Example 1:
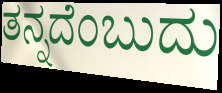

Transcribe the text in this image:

ತನ್ನದೆಂಬುದು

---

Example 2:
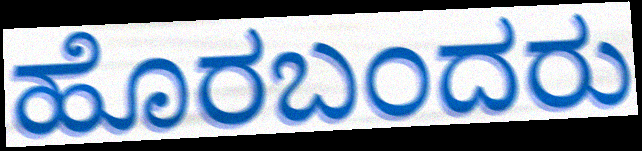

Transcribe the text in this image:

ಹೊರಬಂದರು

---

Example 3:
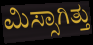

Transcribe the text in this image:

ಮಿಸ್ಸಾಗಿತ್ತು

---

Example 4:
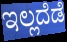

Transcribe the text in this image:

ಇಲ್ಲದೆಡೆ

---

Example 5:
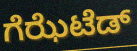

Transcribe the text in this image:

ಗೆಝೆಟೆಡ್